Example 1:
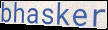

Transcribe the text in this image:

bhasker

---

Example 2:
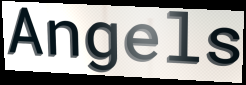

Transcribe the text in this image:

Angels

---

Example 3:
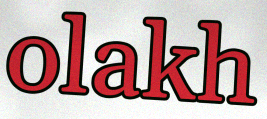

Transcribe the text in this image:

olakh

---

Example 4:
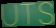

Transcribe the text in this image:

UTS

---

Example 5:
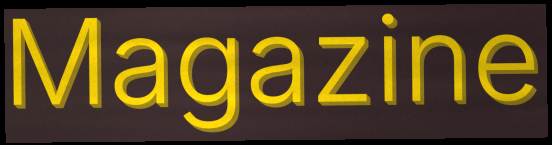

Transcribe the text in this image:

Magazine